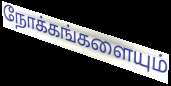
நோக்கங்களையும்